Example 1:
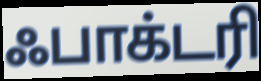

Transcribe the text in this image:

ஃபாக்டரி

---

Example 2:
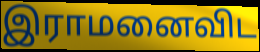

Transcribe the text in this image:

இராமனைவிட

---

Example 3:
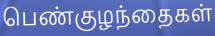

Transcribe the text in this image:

பெண்குழந்தைகள்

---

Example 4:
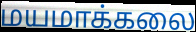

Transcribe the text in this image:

மயமாக்கலை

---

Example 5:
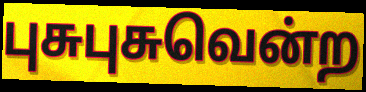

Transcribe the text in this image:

புசுபுசுவென்ற